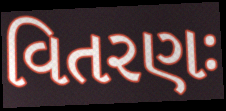
વિતરણઃ